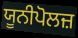
ਯੂਨੀਪੋਲਜ਼